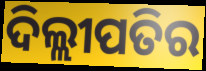
ଦିଲ୍ଲୀପତିର